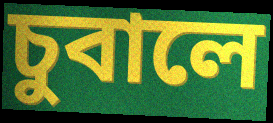
চুবালে